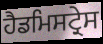
ਹੈਡਮਿਸਟ੍ਰੇਸ